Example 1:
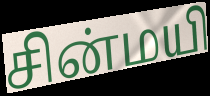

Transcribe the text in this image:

சின்மயி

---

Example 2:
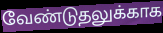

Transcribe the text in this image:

வேண்டுதலுக்காக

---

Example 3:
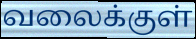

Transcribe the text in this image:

வலைக்குள்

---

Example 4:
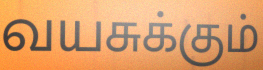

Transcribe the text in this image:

வயசுக்கும்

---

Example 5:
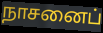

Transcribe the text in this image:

நாசனைப்